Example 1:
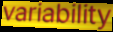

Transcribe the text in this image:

variability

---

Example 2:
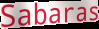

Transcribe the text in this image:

Sabaras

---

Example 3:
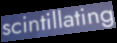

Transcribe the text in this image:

scintillating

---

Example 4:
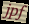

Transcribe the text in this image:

jpf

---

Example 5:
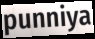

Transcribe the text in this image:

punniya